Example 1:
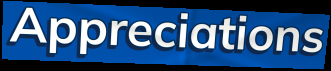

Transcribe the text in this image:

Appreciations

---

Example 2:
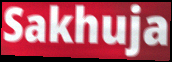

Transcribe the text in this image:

Sakhuja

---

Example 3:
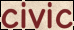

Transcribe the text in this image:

civic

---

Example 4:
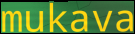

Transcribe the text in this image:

mukava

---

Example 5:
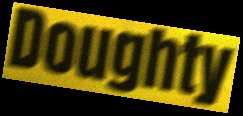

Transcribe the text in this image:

Doughty